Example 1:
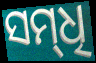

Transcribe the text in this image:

ସମ୍‌ଧି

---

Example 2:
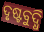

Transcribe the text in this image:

ଦୃଷ୍ଟବୁଦ୍ଧି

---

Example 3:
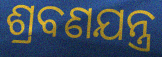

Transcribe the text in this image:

ଶ୍ରବଣଯନ୍ତ୍ର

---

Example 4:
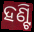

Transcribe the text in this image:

ହଣ୍ଟି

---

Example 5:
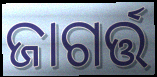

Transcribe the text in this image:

ଜାଗର୍ତ୍ତ